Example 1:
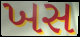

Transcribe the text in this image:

ખસ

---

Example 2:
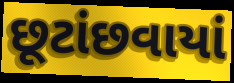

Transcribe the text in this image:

છૂટાંછવાયાં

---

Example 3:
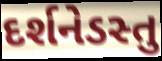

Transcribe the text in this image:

દર્શનેડસ્તુ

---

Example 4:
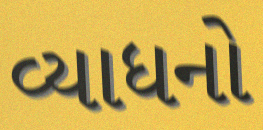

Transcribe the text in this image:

વ્યાધનો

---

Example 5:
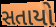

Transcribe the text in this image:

સતાયો